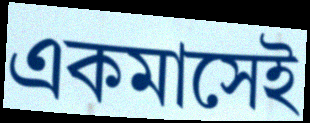
একমাসেই